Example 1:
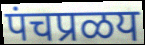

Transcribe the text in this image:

पंचप्रळय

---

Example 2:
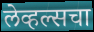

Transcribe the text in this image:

लेव्हल्सचा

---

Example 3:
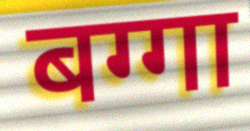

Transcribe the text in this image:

बग्गा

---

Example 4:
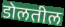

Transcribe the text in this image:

डोलतील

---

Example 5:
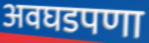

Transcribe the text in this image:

अवघडपणा